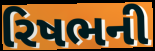
રિષભની